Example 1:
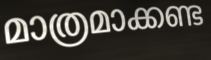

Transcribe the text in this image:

മാത്രമാക്കണ്ട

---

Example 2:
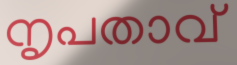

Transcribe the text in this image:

നൃപതാവ്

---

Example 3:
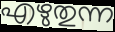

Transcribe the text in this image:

എഴുതുന്ന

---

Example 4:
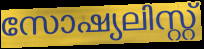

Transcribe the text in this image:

സോഷ്യലിസ്റ്റ്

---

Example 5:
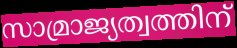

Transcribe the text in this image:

സാമ്രാജ്യത്വത്തിന്